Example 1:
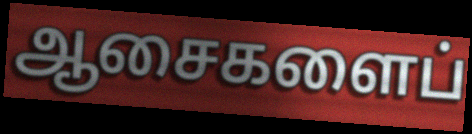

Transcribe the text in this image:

ஆசைகளைப்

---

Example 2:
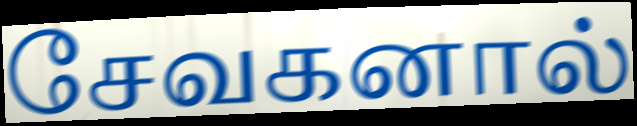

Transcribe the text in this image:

சேவகனால்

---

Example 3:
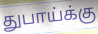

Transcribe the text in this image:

துபாய்க்கு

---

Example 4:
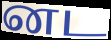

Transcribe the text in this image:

னட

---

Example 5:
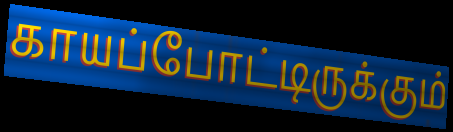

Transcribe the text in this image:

காயப்போட்டிருக்கும்